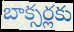
బాక్సర్లకు